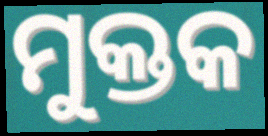
ମୁକ୍ତକ